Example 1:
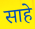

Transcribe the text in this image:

साहे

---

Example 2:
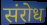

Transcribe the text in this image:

संरोध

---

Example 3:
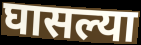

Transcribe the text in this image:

घासल्या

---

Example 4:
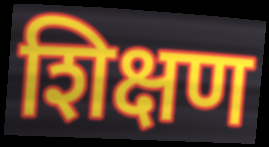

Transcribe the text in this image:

शिक्षण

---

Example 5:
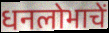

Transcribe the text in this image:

धनलोभाचें